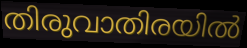
തിരുവാതിരയിൽ